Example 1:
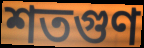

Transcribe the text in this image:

শতগুণ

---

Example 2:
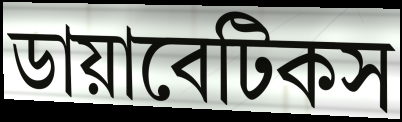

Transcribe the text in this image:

ডায়াবেটিকস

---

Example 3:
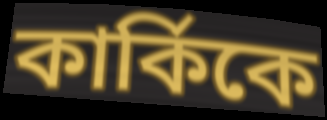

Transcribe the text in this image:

কার্কিকে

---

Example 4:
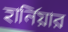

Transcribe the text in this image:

হার্নিয়ার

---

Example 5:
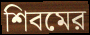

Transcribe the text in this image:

শিবমের